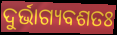
ଦୁର୍ଭାଗ୍ୟବଶତଃ